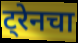
ट्रेनचा